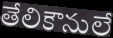
తేలికౌనులే